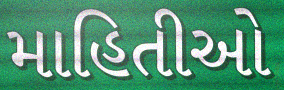
માહિતીઓ